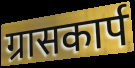
ग्रासकार्प